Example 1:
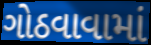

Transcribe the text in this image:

ગોઠવાવામાં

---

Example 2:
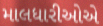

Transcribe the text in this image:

માલધારીઓએ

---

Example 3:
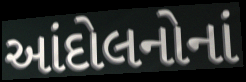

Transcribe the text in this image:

આંદોલનોનાં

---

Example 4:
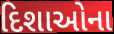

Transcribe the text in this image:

દિશાઓના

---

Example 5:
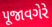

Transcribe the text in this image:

પૂજાવગેરે